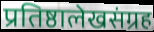
प्रतिष्ठालेखसंग्रह